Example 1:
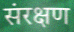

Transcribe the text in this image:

संरक्षण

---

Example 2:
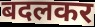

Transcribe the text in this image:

बदलकर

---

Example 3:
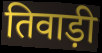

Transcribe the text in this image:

तिवाड़ी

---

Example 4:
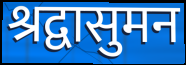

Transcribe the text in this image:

श्रद्वासुमन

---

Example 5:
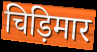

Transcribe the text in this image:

चिड़िमार